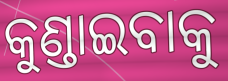
କୁଣ୍ଡାଇବାକୁ